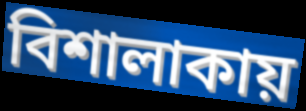
বিশালাকায়